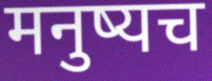
मनुष्यच